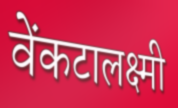
वेंकटालक्ष्मी